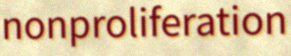
nonproliferation